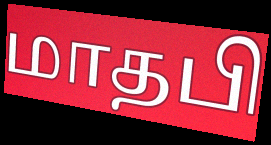
மாதபி